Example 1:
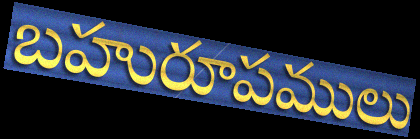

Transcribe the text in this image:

బహురూపములు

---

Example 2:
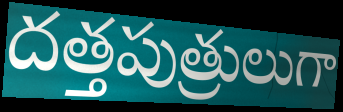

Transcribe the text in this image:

దత్తపుత్రులుగా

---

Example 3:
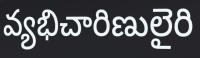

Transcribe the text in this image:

వ్యభిచారిణులైరి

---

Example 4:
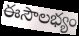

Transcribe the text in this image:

ఈసౌలభ్యం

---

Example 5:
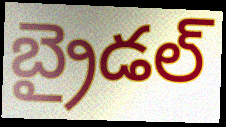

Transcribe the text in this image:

బ్రైడల్